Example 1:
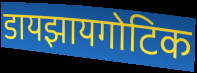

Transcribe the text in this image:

डायझायगोटिक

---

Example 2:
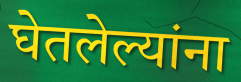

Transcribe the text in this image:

घेतलेल्यांना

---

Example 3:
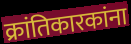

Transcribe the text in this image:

क्रांतिकारकांना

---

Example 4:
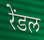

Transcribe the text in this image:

रेंडल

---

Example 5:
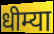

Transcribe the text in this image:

धीम्या